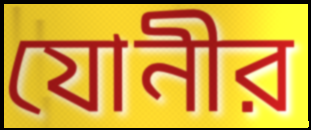
যোনীর